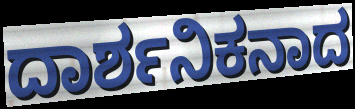
ದಾರ್ಶನಿಕನಾದ